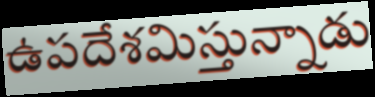
ఉపదేశమిస్తున్నాడు